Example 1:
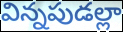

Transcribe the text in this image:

విన్నపుడల్లా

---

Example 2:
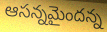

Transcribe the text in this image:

ఆసన్నమైందన్న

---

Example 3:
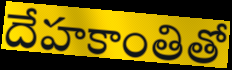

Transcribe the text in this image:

దేహకాంతితో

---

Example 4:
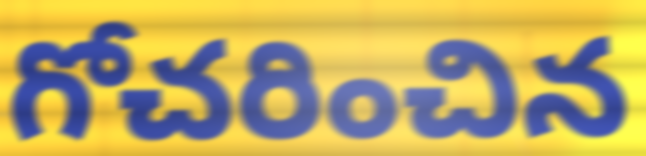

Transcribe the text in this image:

గోచరించిన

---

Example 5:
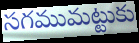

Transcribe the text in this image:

సగముమట్టుకు